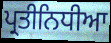
ਪ੍ਰਤੀਨਿਧੀਆ